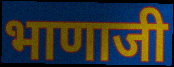
भाणाजी